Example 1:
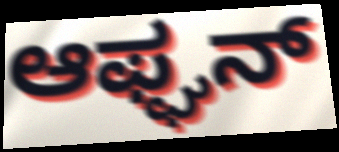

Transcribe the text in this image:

ಆಫ್ಘನ್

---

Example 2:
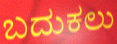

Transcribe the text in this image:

ಬದುಕಲು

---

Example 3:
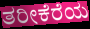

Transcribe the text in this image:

ತರೀಕೆರೆಯ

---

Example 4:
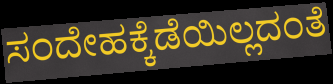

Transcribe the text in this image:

ಸಂದೇಹಕ್ಕೆಡೆಯಿಲ್ಲದಂತೆ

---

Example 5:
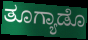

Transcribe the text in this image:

ತೂಗ್ಯಾಡೊ